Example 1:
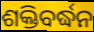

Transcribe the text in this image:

ଶକ୍ତିବର୍ଦ୍ଧନ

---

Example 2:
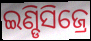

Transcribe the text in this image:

ଇଣ୍ଡିସିଜ୍ରେ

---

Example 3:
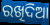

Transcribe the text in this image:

ରଖିଦିଆ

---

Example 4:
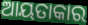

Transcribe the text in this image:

ଆୟତାକାର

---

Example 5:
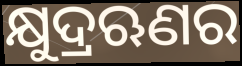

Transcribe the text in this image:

କ୍ଷୁଦ୍ରଋଣର